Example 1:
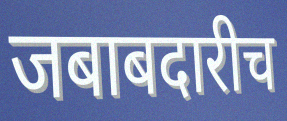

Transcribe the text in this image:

जबाबदारीच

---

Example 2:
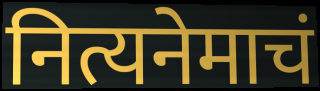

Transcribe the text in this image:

नित्यनेमाचं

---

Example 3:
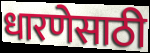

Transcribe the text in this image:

धारणेसाठी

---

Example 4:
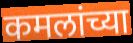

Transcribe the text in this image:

कमलांच्या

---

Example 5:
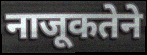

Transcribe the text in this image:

नाजूकतेने